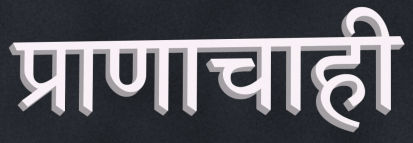
प्राणाचाही